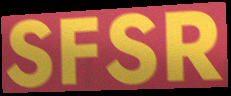
SFSR